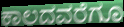
ಕಾಲದವರೆಗೂ